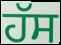
ਹੱਸ